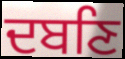
ਦਬਣਿ